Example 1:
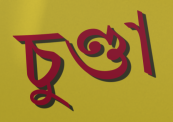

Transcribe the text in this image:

চুণ্ডা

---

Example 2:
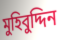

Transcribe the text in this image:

মুহিবুদ্দিন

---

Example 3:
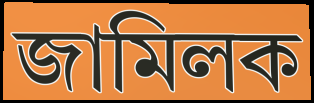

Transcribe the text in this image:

জামিলক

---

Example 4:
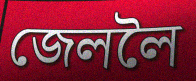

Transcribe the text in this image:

জেললৈ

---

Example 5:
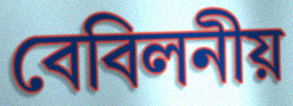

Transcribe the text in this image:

বেবিলনীয়